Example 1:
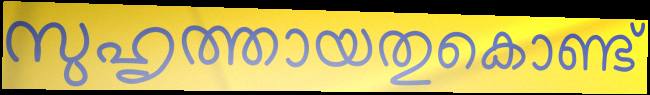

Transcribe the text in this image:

സുഹൃത്തായതുകൊണ്ട്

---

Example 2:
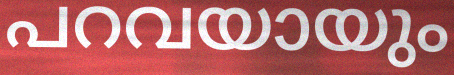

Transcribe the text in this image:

പറവയായും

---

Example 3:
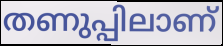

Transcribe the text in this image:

തണുപ്പിലാണ്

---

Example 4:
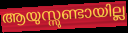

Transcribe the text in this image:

ആയുസ്സുണ്ടായില്ല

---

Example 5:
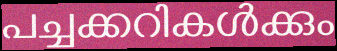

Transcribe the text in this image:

പച്ചക്കറികൾക്കും